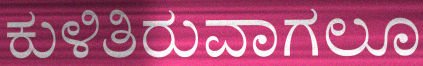
ಕುಳಿತಿರುವಾಗಲೂ